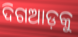
ଦିଗଆଡ଼କୁ